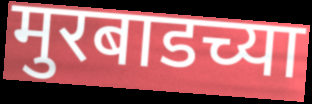
मुरबाडच्या